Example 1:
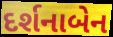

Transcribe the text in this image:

દર્શનાબેન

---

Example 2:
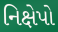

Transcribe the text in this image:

નિક્ષેપો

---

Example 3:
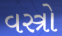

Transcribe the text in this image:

વસ્ત્રો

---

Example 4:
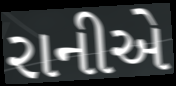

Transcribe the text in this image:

રાનીએ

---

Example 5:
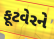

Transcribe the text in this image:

ફૂટવેરને